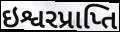
ઇશ્વરપ્રાપ્તિ